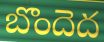
బొందెద